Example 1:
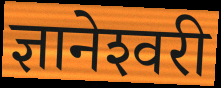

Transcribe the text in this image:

ज्ञानेश्‍वरी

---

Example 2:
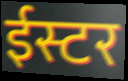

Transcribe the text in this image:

ईस्टर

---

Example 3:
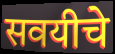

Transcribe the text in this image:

सवयीचे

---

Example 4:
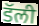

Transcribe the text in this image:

डॅली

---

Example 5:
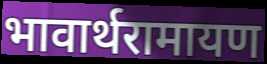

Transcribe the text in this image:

भावार्थरामायण